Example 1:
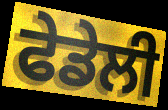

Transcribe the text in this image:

ਫੇਡੇਲੀ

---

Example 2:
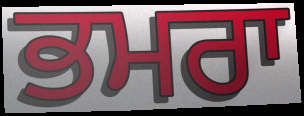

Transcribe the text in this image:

ਭਮਰਾ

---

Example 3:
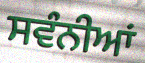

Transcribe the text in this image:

ਸਵੰਨੀਆਂ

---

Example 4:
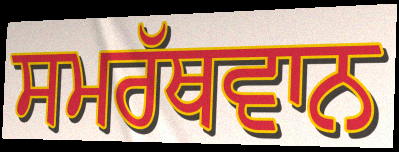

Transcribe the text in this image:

ਸਮਰੱਥਵਾਨ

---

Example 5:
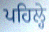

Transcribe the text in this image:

ਪਹਿਲ੍ਹੇ